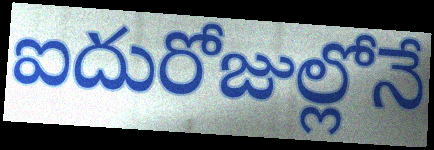
ఐదురోజుల్లోనే